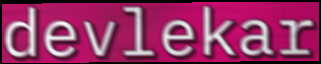
devlekar